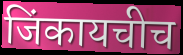
जिंकायचीच